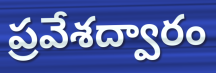
ప్రవేశద్వారం